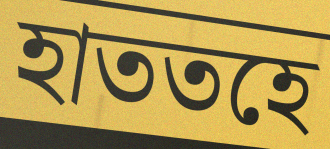
হাততহে